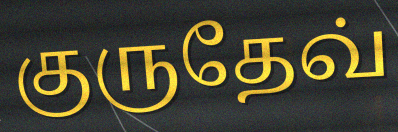
குருதேவ்